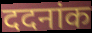
ददनांक